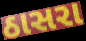
ઠાસરા